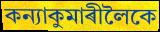
কন্যাকুমাৰীলৈকে